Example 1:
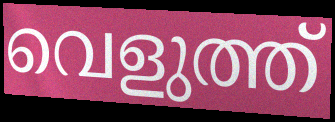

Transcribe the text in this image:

വെളുത്ത്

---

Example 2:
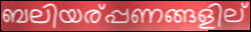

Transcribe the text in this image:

ബലിയര്പ്പണങ്ങളില്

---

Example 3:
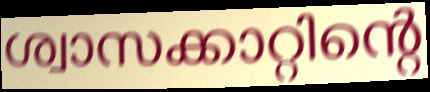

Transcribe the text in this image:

ശ്വാസക്കാറ്റിന്റെ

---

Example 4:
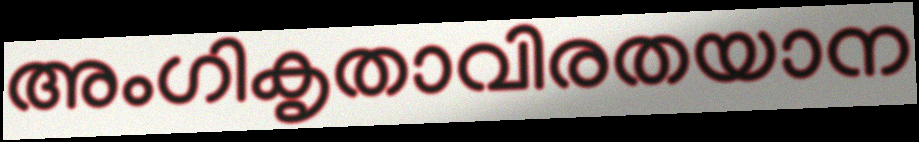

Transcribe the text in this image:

അംഗികൃതാവിരതയാന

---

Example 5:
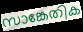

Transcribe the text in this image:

സാങ്കേതിക